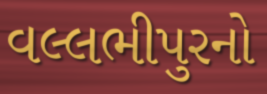
વલ્લભીપુરનો